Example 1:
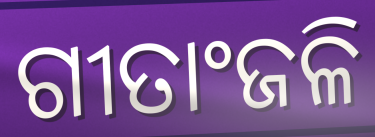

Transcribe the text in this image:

ଗୀତାଂଜଳି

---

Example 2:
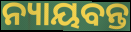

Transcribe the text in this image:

ନ୍ୟାୟବନ୍ତ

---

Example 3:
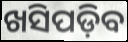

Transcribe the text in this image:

ଖସିପଡ଼ିବ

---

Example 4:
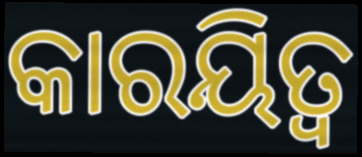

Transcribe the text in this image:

କାରୟିତ୍ୱ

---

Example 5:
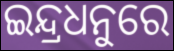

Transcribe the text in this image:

ଇନ୍ଦ୍ରଧନୁରେ